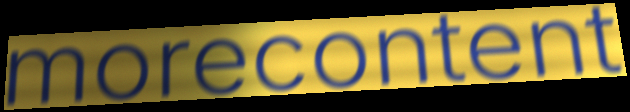
morecontent